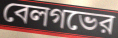
বেলগভের